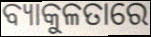
ବ୍ୟାକୁଳତାରେ